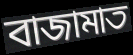
বাজামাত